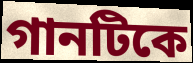
গানটিকে